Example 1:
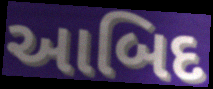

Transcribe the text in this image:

આબિદ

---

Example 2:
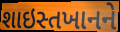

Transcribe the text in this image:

શાઇસ્તખાનને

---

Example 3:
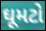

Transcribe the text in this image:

ઘૂમટો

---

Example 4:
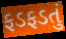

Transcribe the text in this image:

ફડફડતું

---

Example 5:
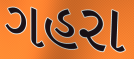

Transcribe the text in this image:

ગહરા